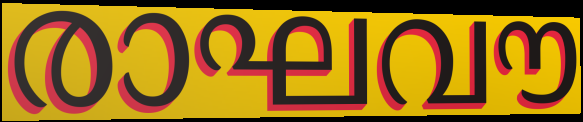
രാഘവൗ